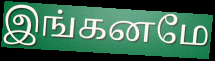
இங்கனமே